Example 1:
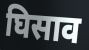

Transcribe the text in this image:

घिसाव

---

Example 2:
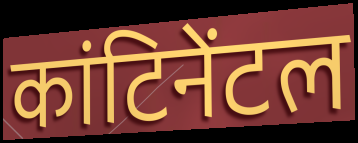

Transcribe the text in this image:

कांटिनेंटल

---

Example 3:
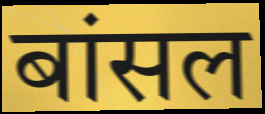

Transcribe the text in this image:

बांसल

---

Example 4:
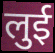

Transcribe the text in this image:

लुई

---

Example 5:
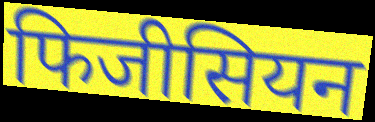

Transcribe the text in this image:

फिजीसियन